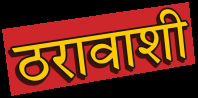
ठरावाशी